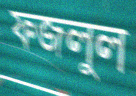
ফজলুল